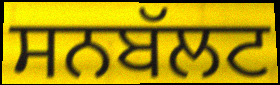
ਸਨਬੱਲਟ